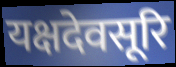
यक्षदेवसूरि